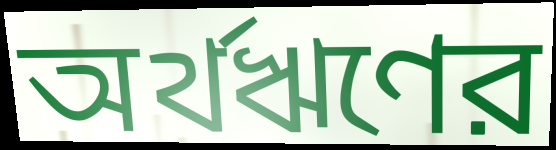
অর্থঋণের